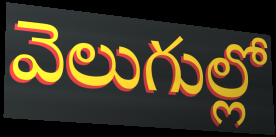
వెలుగుల్లో